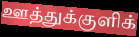
ஊத்துக்குளிக்